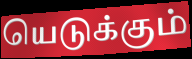
யெடுக்கும்